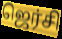
ஜெர்சி